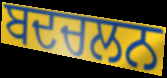
ਬਦਚਲਨ